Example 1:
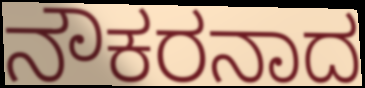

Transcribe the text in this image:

ನೌಕರನಾದ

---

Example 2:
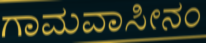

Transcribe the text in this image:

ಗಾಮವಾಸೀನಂ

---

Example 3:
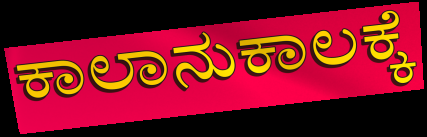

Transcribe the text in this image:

ಕಾಲಾನುಕಾಲಕ್ಕೆ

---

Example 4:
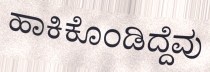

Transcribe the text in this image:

ಹಾಕಿಕೊಂಡಿದ್ದೆವು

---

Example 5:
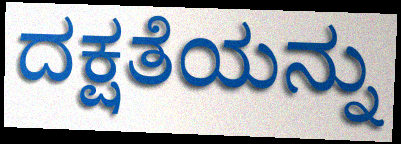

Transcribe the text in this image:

ದಕ್ಷತೆಯನ್ನು